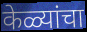
केळ्यांचा